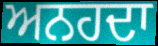
ਅਨਹਦਾ